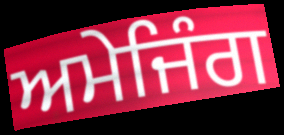
ਅਮੇਜਿੰਗ